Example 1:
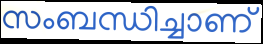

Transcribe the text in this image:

സംബന്ധിച്ചാണ്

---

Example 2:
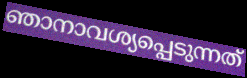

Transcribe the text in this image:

ഞാനാവശ്യപ്പെടുന്നത്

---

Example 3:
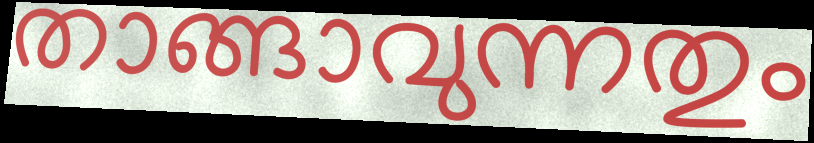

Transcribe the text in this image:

താങ്ങാവുന്നതും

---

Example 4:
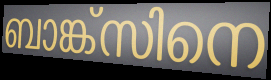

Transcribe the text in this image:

ബാങ്ക്സിനെ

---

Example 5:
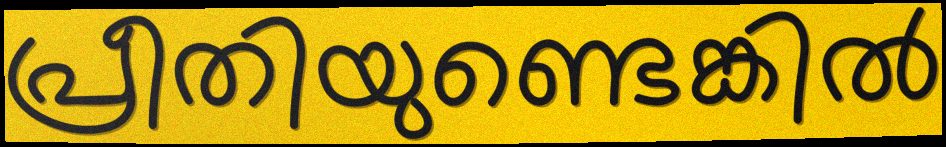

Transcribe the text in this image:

പ്രീതിയുണ്ടെങ്കിൽ